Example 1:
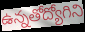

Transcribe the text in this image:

ఉన్నతోద్యోగిని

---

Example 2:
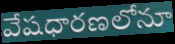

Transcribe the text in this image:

వేషధారణలోనూ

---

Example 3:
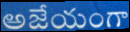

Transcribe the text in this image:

అజేయంగా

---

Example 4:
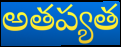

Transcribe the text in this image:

అతప్యత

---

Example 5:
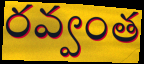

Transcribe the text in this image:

రవ్వంత